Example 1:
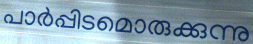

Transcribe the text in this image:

പാർപ്പിടമൊരുക്കുന്നു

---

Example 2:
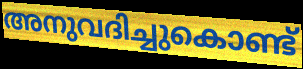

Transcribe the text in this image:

അനുവദിച്ചുകൊണ്ട്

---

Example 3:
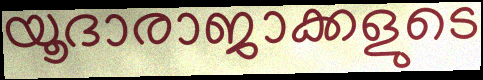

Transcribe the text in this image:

യൂദാരാജാക്കളുടെ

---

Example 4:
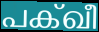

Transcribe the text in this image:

പക്ഖീ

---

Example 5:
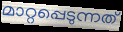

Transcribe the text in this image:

മാറ്റപ്പെടുന്നത്